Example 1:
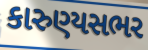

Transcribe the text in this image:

કારુણ્યસભર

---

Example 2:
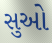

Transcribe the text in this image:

સુઓ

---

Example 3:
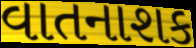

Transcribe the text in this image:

વાતનાશક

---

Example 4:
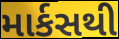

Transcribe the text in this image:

માર્કસથી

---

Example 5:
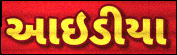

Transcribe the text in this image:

આઇડીયા